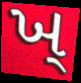
ખ્